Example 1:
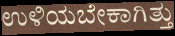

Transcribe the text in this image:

ಉಳಿಯಬೇಕಾಗಿತ್ತು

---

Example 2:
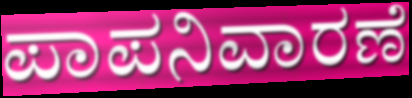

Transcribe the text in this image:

ಪಾಪನಿವಾರಣೆ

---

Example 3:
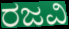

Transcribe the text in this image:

ರಜವಿ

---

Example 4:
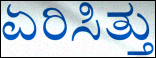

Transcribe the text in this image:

ಏರಿಸಿತ್ತು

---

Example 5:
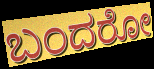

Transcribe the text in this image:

ಬಂದರೋ